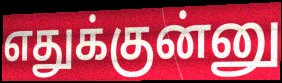
எதுக்குன்னு